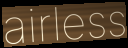
airless